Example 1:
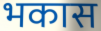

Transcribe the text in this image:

भकास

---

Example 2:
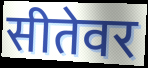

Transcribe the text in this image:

सीतेवर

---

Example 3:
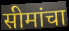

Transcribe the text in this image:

सीमांचा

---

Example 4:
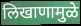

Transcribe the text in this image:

लिखाणामुळे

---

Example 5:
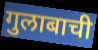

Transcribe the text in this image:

गुलाबाची